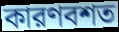
কারণবশত